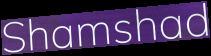
Shamshad